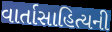
વાર્તાસાહિત્યની